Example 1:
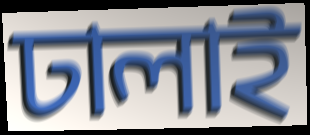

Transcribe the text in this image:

ঢালাই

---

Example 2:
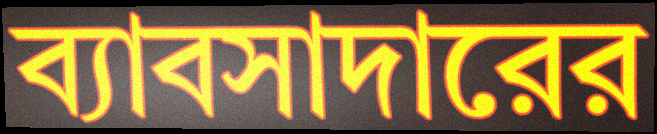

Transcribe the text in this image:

ব্যাবসাদারের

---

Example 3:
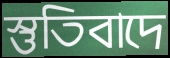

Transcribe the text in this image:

স্তুতিবাদে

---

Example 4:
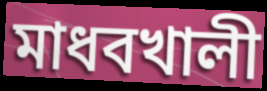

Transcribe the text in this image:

মাধবখালী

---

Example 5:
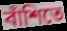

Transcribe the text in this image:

বাঁশিতে